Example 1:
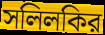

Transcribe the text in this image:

সলিলকির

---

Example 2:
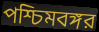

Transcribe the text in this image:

পশ্চিমবঙ্গর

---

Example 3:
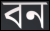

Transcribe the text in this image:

বন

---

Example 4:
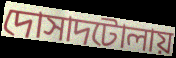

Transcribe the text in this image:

দোসাদটোলায়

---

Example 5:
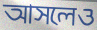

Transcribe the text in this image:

আসলেও